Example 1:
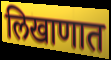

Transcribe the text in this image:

लिखाणात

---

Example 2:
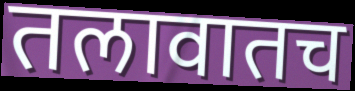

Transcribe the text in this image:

तलावातच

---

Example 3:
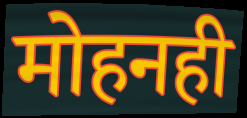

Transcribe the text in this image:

मोहनही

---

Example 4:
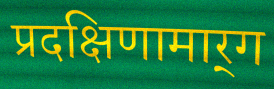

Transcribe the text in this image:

प्रदक्षिणामार्ग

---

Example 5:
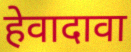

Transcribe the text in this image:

हेवादावा